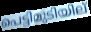
പെട്ടിമുടിയില്